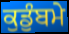
ਕੁਡੁੰਬਮੇ